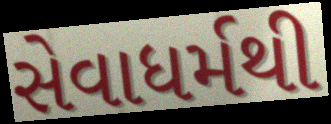
સેવાધર્મથી